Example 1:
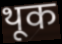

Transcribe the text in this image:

थूक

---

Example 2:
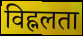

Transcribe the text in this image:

विह्नलता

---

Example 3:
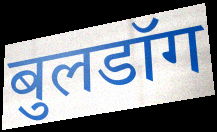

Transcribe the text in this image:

बुलडॉग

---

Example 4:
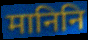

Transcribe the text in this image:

मानिनि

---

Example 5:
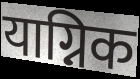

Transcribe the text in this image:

याग्निक